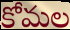
కోమల